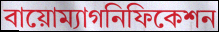
বায়োম্যাগনিফিকেশন